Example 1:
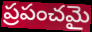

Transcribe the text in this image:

ప్రపంచమై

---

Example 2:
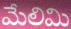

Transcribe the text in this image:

మేలిమి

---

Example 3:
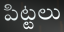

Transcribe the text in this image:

పిట్టలు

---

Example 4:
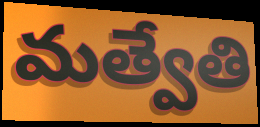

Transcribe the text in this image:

మత్వేతి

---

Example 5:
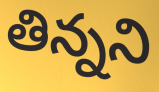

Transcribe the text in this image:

తిన్నని